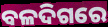
ବଳଦିଗରେ